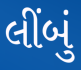
લીંબું